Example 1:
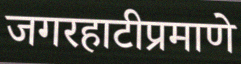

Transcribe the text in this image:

जगरहाटीप्रमाणे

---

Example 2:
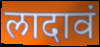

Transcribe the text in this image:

लादावं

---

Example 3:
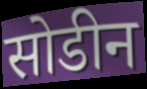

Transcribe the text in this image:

सोडीन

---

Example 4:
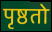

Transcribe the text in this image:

पृष्ठतो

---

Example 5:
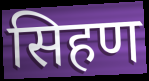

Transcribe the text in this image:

सिहण